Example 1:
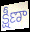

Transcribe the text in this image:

క్షీణా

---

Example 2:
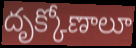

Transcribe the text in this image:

దృక్కోణాలూ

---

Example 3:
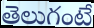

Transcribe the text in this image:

తెలుగంటే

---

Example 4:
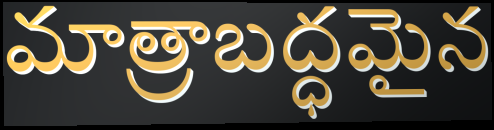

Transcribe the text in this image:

మాత్రాబద్ధమైన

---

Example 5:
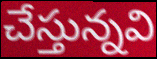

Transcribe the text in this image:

చేస్తున్నవి